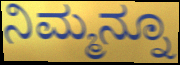
ನಿಮ್ಮನ್ನೂ